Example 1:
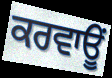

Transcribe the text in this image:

ਕਰਵਾਊਂ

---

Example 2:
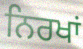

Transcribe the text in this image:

ਨਿਰਖਾਂ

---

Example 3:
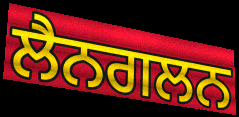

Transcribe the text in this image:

ਲੈਨਗਲਨ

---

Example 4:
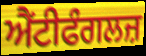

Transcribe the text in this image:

ਐਂਟੀਫੰਗਲਜ਼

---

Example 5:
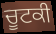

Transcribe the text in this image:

ਚੂਟਕੀ